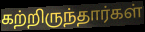
கற்றிருந்தார்கள்